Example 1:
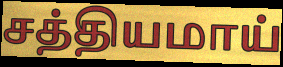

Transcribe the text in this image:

சத்தியமாய்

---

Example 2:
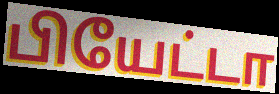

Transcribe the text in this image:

பியேட்டா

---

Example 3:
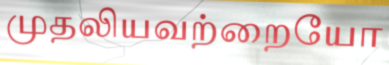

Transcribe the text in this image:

முதலியவற்றையோ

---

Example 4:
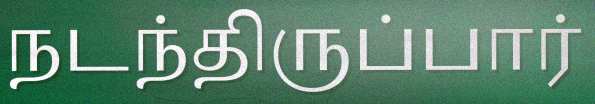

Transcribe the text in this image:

நடந்திருப்பார்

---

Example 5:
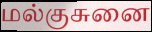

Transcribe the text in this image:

மல்குசுனை